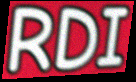
RDI